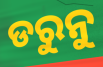
ଡରୁନୁ